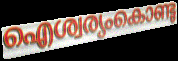
ഐശ്വര്യംകൊണ്ടു